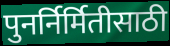
पुनर्निर्मितीसाठी